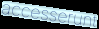
accesserunt